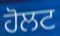
ਹੋਲਟ